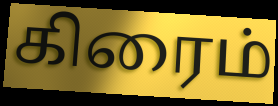
கிரைம்